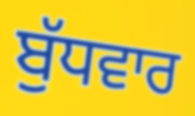
ਬੁੱਧਵਾਰ